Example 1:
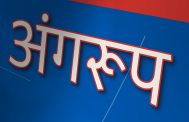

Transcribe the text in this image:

अंगरूप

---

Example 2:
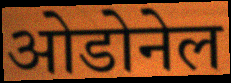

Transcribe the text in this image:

ओडोनेल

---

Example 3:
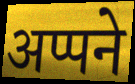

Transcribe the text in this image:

अप्पने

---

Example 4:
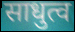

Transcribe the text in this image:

साधुत्व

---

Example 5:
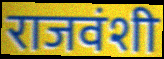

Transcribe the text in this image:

राजवंशी